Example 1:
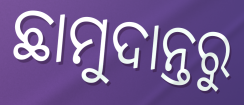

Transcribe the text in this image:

ଛାମୁଦାନ୍ତରୁ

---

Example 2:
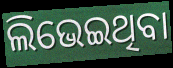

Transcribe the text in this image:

ଲିଭେଇଥିବା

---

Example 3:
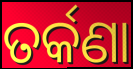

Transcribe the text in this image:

ତର୍କଣା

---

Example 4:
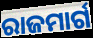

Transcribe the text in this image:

ରାଜମାର୍ଗ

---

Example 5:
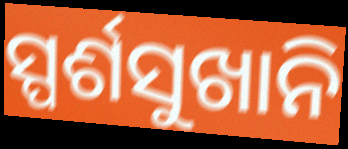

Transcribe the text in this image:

ସ୍ପର୍ଶସୁଖାନି